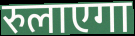
रुलाएगा